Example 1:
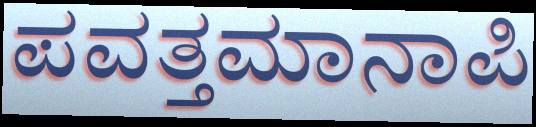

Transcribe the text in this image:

ಪವತ್ತಮಾನಾಪಿ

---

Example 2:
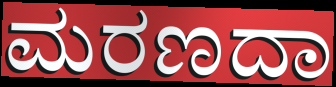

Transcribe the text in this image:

ಮರಣದಾ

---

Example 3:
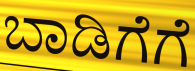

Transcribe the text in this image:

ಬಾಡಿಗೆಗೆ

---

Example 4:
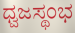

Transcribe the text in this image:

ಧ್ವಜಸ್ಥಂಭ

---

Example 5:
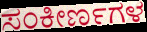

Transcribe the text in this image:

ಸಂಕೀರ್ಣಗಳ